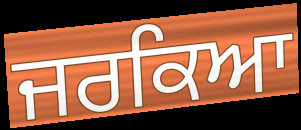
ਜਰਕਿਆ